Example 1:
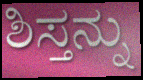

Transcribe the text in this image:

ಶಿಸ್ತನ್ನು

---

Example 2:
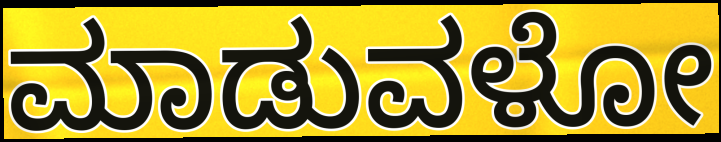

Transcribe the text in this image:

ಮಾಡುವಳೋ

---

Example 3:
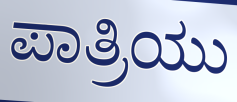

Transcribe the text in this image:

ಪಾತ್ರಿಯು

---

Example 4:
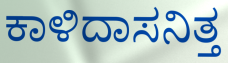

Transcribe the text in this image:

ಕಾಳಿದಾಸನಿತ್ತ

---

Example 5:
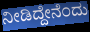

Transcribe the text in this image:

ನೀಡಿದ್ದೇನೆಂದು